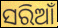
ସରିଆଁ